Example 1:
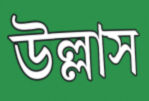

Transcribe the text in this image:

উল্লাস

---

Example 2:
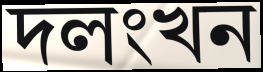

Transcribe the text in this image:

দলংখন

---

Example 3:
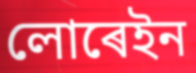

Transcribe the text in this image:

লোৰেইন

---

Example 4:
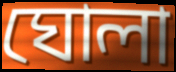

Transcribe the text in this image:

ঘোলা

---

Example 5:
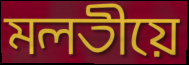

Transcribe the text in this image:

মলতীয়ে